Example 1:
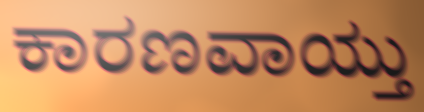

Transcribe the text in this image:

ಕಾರಣವಾಯ್ತು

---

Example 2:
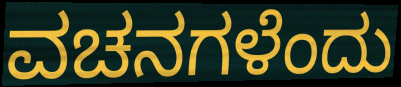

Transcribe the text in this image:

ವಚನಗಳೆಂದು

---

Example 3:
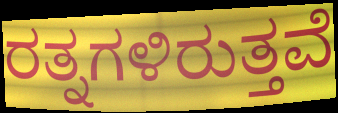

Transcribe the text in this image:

ರತ್ನಗಳಿರುತ್ತವೆ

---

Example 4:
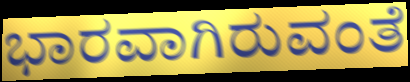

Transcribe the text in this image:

ಭಾರವಾಗಿರುವಂತೆ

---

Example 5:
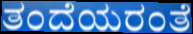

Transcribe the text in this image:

ತಂದೆಯರಂತೆ